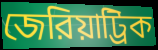
জেরিয়াট্রিক